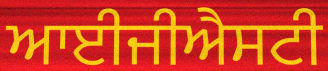
ਆਈਜੀਐਸਟੀ